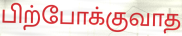
பிற்போக்குவாத